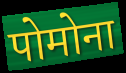
पोमोना